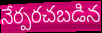
నేర్పరచబడిన